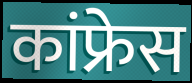
कांफ्रेस